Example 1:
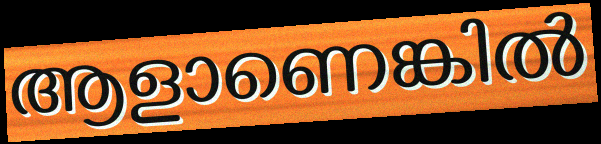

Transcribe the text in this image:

ആളാണെങ്കിൽ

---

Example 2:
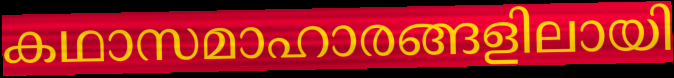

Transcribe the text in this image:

കഥാസമാഹാരങ്ങളിലായി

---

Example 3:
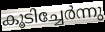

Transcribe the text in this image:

കൂടിച്ചേർന്നു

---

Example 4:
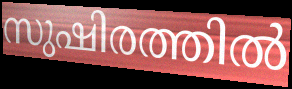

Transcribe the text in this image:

സുഷിരത്തിൽ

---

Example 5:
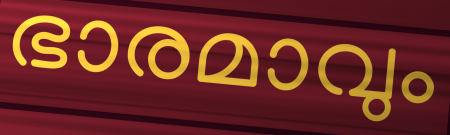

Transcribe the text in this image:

ഭാരമാവും